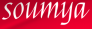
soumya